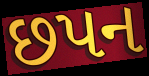
છપન